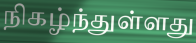
நிகழ்ந்துள்ளது